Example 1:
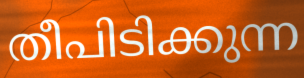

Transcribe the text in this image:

തീപിടിക്കുന്ന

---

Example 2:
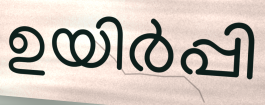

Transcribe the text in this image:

ഉയിർപ്പി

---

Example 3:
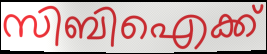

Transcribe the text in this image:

സിബിഐക്ക്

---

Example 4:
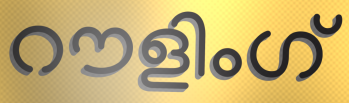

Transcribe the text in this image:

റൗളിംഗ്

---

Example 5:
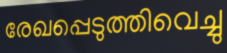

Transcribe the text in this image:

രേഖപ്പെടുത്തിവെച്ചു